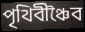
পৃথিবীঞ্চৈব